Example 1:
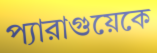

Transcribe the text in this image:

প্যারাগুয়েকে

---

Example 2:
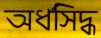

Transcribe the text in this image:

অর্ধসিদ্ধ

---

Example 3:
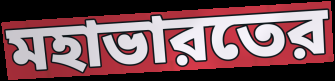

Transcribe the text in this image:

মহাভারতের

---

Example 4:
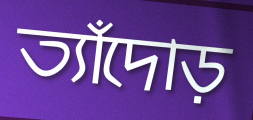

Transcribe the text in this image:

ত্যাঁদোড়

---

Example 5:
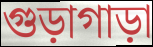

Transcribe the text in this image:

গুড়াগাড়া